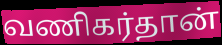
வணிகர்தான்